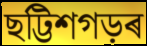
ছট্টিশগড়ৰ